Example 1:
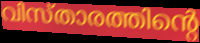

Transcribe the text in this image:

വിസ്‌താരത്തിന്റെ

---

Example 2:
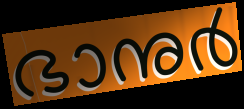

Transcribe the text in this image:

ഭാനുർ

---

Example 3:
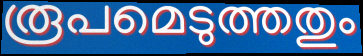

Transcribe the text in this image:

രൂപമെടുത്തതും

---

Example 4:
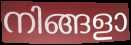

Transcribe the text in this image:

നിങ്ങളാ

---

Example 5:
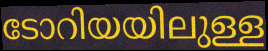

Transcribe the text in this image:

ടോറിയയിലുള്ള